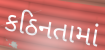
કઠિનતામાં